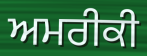
ਅਮਰੀਕੀ